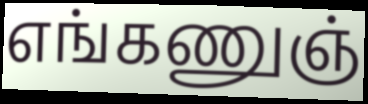
எங்கணுஞ்